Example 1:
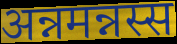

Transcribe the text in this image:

अन्नमन्नस्स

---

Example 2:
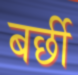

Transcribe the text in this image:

बर्छी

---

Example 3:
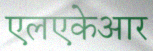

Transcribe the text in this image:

एलएकेआर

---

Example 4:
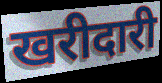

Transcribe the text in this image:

खरीदारी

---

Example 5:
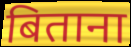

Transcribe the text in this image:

बिताना